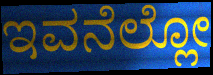
ಇವನೆಲ್ಲೋ